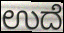
ಉದೆ